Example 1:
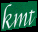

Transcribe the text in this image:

kmt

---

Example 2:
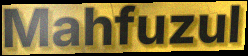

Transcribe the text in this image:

Mahfuzul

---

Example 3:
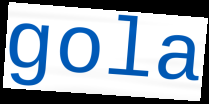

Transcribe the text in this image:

gola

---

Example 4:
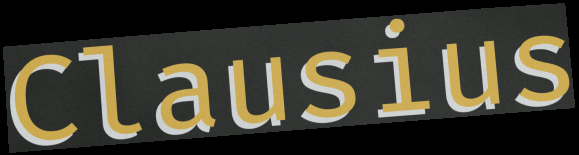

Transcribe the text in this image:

Clausius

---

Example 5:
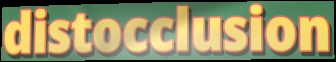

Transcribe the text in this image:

distocclusion